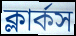
ক্লার্কস